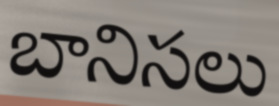
బానిసలు